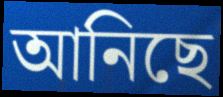
আনিছে